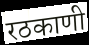
रठकाणी